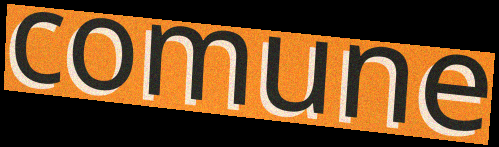
comune